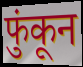
फुंकून